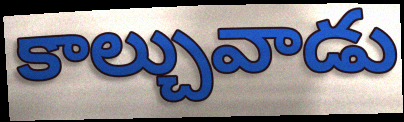
కాల్చువాడు